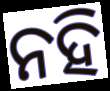
ନହି